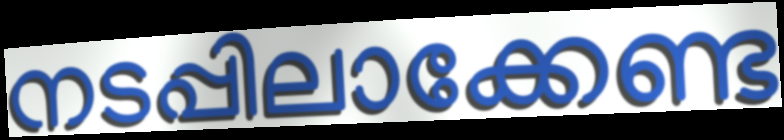
നടപ്പിലാക്കേണ്ട